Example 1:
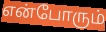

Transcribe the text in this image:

என்போரும்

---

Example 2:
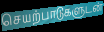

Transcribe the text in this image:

செயற்பாடுகளுடன்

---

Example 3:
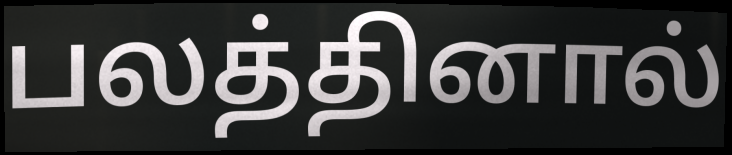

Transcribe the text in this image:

பலத்தினால்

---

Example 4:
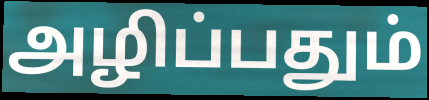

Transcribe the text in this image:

அழிப்பதும்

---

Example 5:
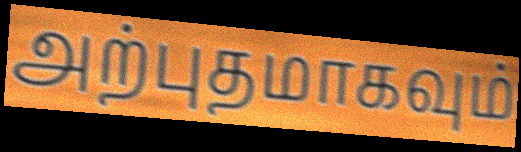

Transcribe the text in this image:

அற்புதமாகவும்